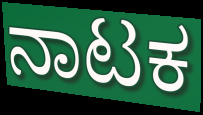
ನಾಟಕ